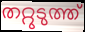
തറ്റുടുത്ത്